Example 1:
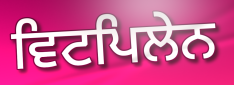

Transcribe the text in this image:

ਵਿਟਪਿਲੇਨ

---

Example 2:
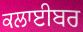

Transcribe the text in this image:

ਕਲਾਈਬਰ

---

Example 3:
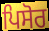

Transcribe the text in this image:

ਪਿਸੋਰ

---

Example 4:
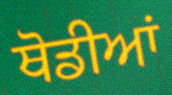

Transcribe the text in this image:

ਥੋਡੀਆਂ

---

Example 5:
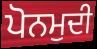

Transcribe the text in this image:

ਪੋਨਮੁਦੀ